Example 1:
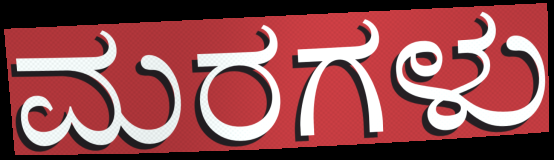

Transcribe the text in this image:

ಮರಗಳು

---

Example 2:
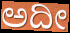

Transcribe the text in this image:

ಅದೀ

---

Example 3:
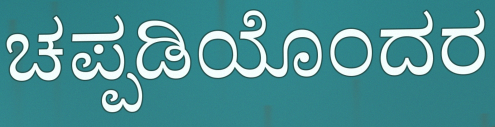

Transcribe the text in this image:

ಚಪ್ಪಡಿಯೊಂದರ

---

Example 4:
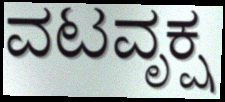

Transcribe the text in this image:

ವಟವೃಕ್ಷ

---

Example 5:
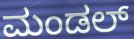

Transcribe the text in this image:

ಮಂಡಲ್